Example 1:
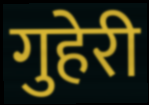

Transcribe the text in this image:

गुहेरी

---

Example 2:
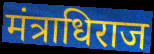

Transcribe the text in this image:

मंत्राधिराज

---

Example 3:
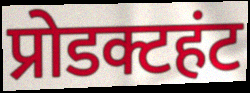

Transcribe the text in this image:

प्रोडक्टहंट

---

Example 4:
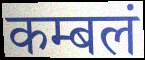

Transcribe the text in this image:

कम्बलं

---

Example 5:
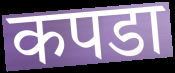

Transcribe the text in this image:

कपडा